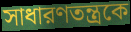
সাধারণতন্ত্রকে